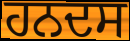
ਹਨਦਸ